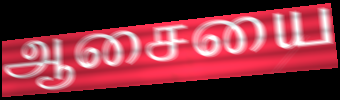
ஆசையை